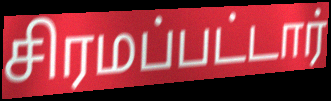
சிரமப்பட்டார்